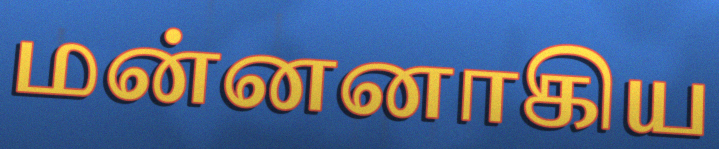
மன்னனாகிய